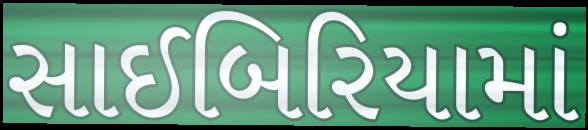
સાઈબિરિયામાં